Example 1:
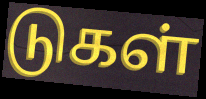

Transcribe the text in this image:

டுகள்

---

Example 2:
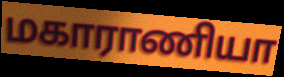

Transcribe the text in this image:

மகாராணியா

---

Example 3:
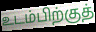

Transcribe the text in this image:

உடம்பிற்குத்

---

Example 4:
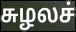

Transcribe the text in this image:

சுழலச்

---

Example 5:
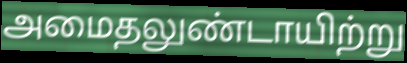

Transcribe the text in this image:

அமைதலுண்டாயிற்று